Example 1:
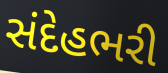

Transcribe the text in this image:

સંદેહભરી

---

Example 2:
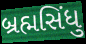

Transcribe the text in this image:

બ્રહ્મસિંધુ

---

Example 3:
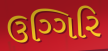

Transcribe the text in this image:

ઉગ્ગિરિ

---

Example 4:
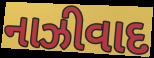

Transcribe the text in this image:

નાઝીવાદ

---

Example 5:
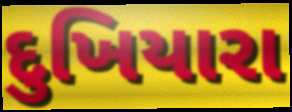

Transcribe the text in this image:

દુખિયારા